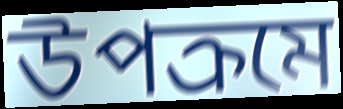
উপক্রমে